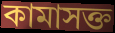
কামাসক্ত